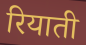
रियाती